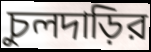
চুলদাড়ির